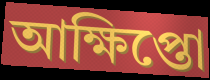
আক্ষিপ্তো